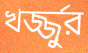
খর্জ্জুর